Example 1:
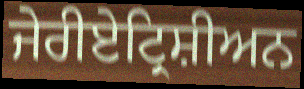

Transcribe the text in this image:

ਜੇਰੀਏਟ੍ਰਿਸ਼ੀਅਨ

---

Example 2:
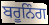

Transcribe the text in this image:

ਬਰੂਨਿੰਗ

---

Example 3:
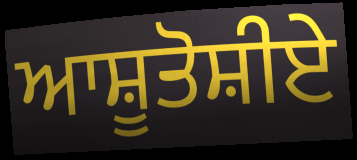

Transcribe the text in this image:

ਆਸ਼ੂਤੋਸ਼ੀਏ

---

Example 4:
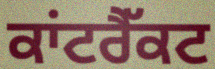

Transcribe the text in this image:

ਕਾਂਟਰੈੱਕਟ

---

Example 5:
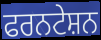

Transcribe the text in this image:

ਫਰਨਟੇਸ਼ਨ